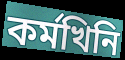
কৰ্মখিনি